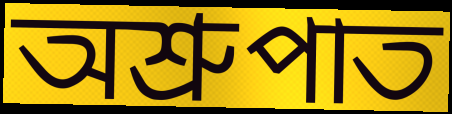
অশ্রুপাত